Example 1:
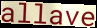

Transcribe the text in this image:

allave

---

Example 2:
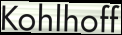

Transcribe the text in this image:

Kohlhoff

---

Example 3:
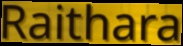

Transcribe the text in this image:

Raithara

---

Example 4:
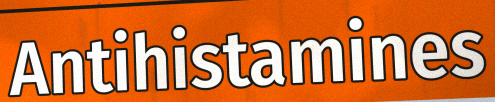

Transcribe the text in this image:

Antihistamines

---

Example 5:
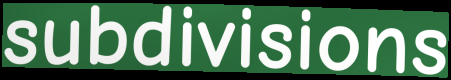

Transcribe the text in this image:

subdivisions